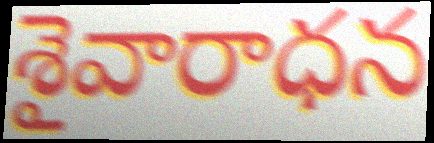
శైవారాధన